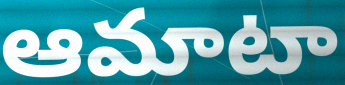
ఆమాటా